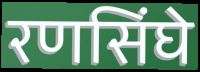
रणसिंघे